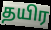
தயிர